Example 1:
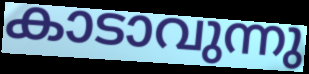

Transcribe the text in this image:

കാടാവുന്നു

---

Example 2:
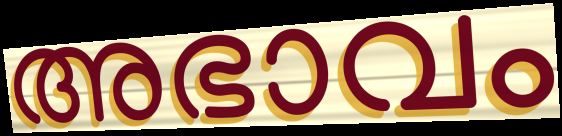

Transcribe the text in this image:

അഭാവം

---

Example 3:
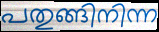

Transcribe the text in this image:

പതുങ്ങിനിന്ന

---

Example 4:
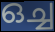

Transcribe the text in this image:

ഒച്ച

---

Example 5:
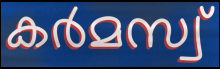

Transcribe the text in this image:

കർമസ്വ്